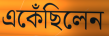
একেঁছিলেন